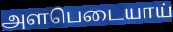
அளபெடையாய்